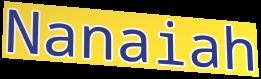
Nanaiah